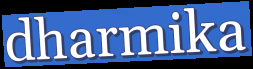
dharmika